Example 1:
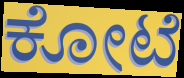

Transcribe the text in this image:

ಕೋಟೆ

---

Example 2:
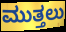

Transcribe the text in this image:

ಮುತ್ತಲು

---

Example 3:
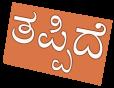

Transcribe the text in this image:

ತಪ್ಪಿದೆ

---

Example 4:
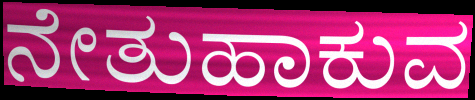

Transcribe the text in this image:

ನೇತುಹಾಕುವ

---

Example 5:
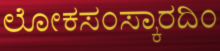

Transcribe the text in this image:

ಲೋಕಸಂಸ್ಕಾರದಿಂ